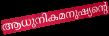
ആധുനികമനുഷ്യന്റെ